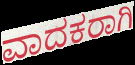
ವಾದಕರಾಗಿ